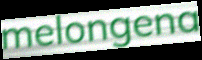
melongena